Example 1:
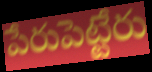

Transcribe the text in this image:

పేరుపెట్టేరు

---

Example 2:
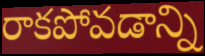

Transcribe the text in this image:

రాకపోవడాన్ని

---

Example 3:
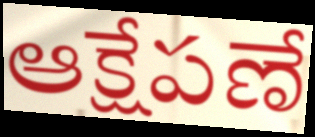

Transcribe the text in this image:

ఆక్షేపణే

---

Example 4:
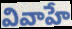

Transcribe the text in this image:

వివాహే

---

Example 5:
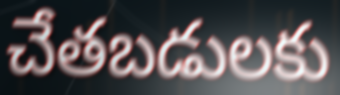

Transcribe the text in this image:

చేతబడులకు